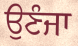
ਉਣੰਜਾ